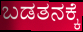
ಬಡತನಕ್ಕೆ